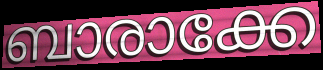
ബാരാക്കേ